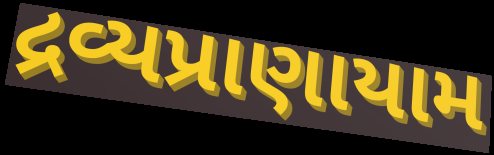
દ્રવ્યપ્રાણાયામ